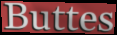
Buttes